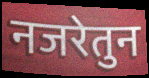
नजरेतुन